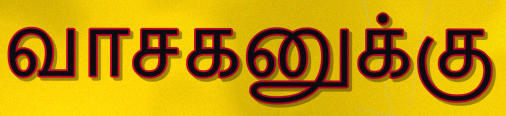
வாசகனுக்கு